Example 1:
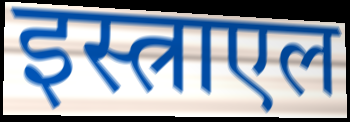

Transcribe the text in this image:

इस्त्राएल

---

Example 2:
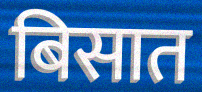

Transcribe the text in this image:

बिसात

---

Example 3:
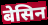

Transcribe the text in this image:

बेसिन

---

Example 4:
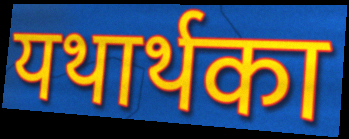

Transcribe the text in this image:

यथार्थका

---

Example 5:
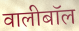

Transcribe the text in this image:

वालीबॉल